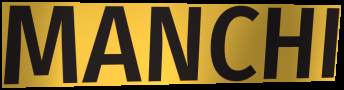
MANCHI